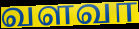
வளவா